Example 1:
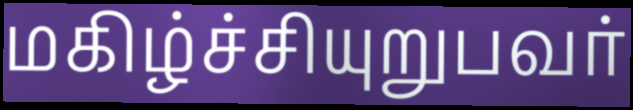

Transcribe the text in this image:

மகிழ்ச்சியுறுபவர்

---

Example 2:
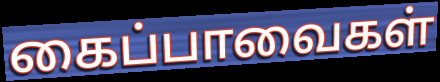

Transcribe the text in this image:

கைப்பாவைகள்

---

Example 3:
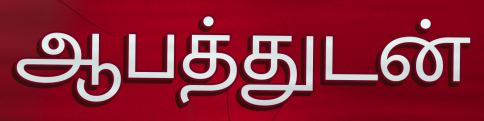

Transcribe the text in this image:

ஆபத்துடன்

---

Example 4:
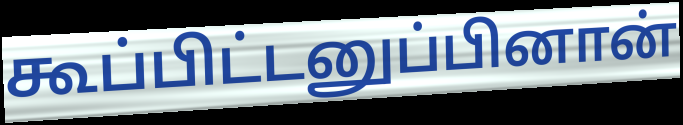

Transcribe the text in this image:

கூப்பிட்டனுப்பினான்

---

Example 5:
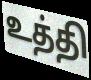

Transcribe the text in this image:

உத்தி